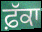
ਫ਼ੱਕਾ